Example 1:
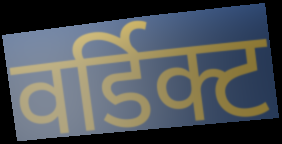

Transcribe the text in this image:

वर्डिक्ट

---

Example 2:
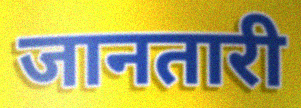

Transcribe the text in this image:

जानतारी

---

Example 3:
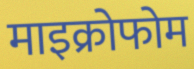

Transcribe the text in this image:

माइक्रोफोम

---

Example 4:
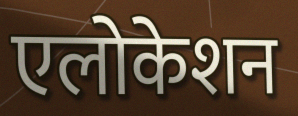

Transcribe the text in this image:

एलोकेशन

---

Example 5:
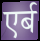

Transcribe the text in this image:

एर्ब